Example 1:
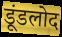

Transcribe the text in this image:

डूंडलोद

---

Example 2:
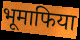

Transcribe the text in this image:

भूमाफिया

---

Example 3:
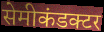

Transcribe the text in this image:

सेमीकंडक्टर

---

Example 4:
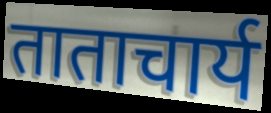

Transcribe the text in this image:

ताताचार्य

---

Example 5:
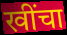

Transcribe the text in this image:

खींचा